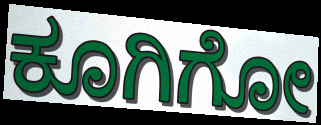
ಕೂಗಿಗೋ